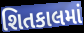
શિતકાલમાં